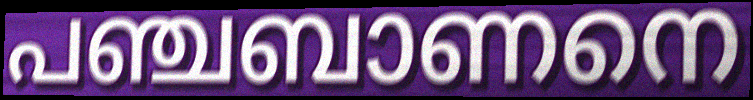
പഞ്ചബാണനെ